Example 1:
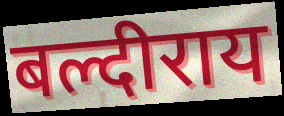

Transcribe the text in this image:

बल्दीराय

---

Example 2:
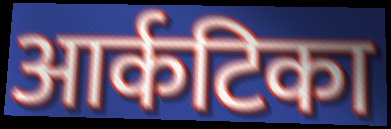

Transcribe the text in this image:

आर्कटिका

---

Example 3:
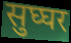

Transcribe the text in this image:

सुघ्घर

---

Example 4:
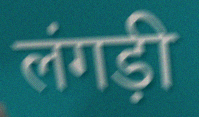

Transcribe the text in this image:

लंगड़ी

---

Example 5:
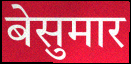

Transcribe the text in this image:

बेसुमार